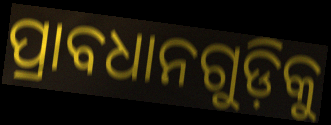
ପ୍ରାବଧାନଗୁଡ଼ିକୁ